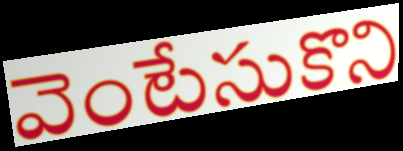
వెంటేసుకొని